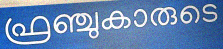
ഫ്രഞ്ചുകാരുടെ